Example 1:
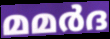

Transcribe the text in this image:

മമർദ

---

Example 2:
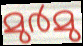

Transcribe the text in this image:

മുർമു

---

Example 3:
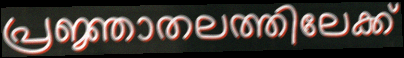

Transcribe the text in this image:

പ്രജ്ഞാതലത്തിലേക്ക്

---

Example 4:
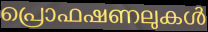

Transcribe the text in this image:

പ്രൊഫഷണലുകൾ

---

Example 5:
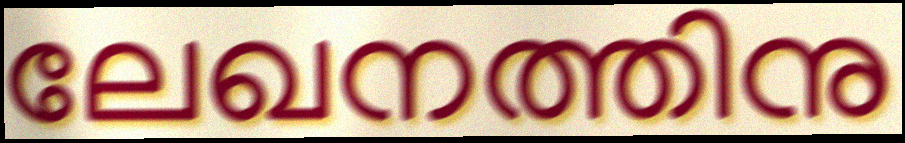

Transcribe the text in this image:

ലേഖനത്തിനു